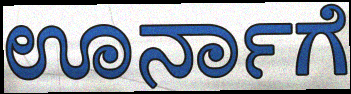
ಊರ್ನಾಗೆ